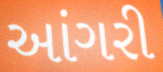
આંગરી